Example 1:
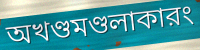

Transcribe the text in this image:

অখণ্ডমণ্ডলাকারং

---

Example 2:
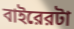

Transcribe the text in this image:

বাইরেরটা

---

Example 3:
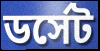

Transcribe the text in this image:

ডর্সেট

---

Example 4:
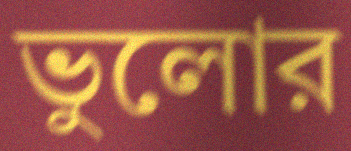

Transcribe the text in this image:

ভুলোর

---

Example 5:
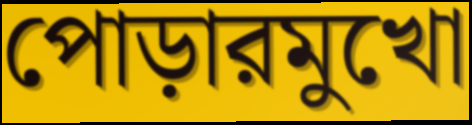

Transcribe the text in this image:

পোড়ারমুখো